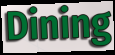
Dining